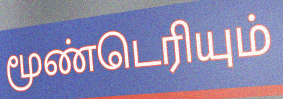
மூண்டெரியும்